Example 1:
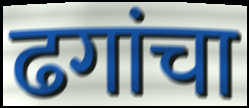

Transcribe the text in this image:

ढगांचा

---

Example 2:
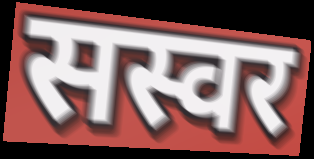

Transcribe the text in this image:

सस्वर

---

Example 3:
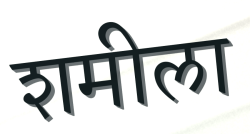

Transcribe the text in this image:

शमीला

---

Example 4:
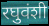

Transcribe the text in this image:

रघुवंशी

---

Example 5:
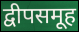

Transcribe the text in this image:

द्वीपसमूह